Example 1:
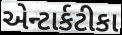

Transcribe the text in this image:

એન્ટાર્કટીકા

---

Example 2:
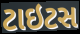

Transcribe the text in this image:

ટાઇટસ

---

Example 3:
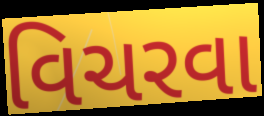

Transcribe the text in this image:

વિચરવા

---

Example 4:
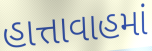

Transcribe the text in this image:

હાત્તાવાહમાં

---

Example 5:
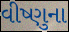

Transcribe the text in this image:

વીષ્ણુના